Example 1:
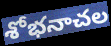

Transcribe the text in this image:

శోభనాచల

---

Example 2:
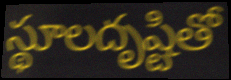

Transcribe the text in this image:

స్థూలదృష్టితో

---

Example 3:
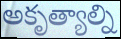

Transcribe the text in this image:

అకృత్యాల్ని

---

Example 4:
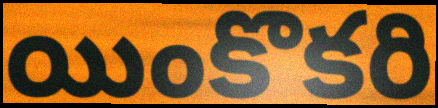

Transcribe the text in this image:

యింకొకరి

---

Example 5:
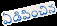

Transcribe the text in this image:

ఏడిపించిన